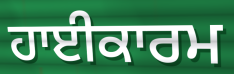
ਹਾਈਕਾਰਮ